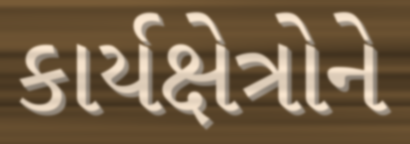
કાર્યક્ષેત્રોને